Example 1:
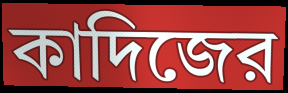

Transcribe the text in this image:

কাদিজের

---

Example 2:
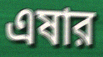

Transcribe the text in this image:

এষার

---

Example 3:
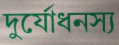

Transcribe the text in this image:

দুর্যোধনস্য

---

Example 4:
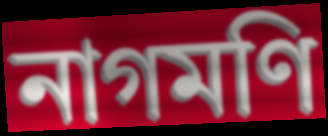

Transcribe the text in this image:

নাগমণি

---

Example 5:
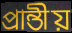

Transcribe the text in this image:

প্রান্তীয়